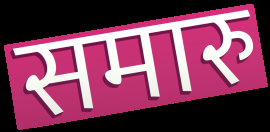
समारु